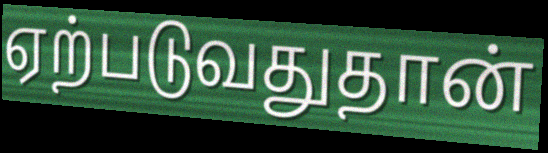
ஏற்படுவதுதான்